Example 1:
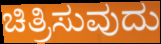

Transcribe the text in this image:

ಚಿತ್ರಿಸುವುದು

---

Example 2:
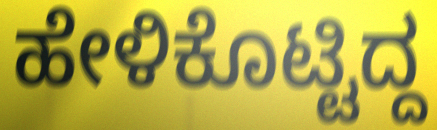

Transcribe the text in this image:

ಹೇಳಿಕೊಟ್ಟಿದ್ದ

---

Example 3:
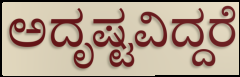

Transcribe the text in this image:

ಅದೃಷ್ಟವಿದ್ದರೆ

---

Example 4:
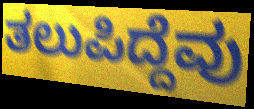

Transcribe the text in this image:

ತಲುಪಿದ್ದೆವು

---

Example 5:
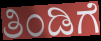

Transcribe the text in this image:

ತಿಂಡಿಗೆ